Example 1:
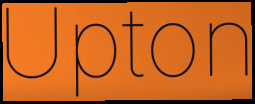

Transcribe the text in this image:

Upton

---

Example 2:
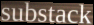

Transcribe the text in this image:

substack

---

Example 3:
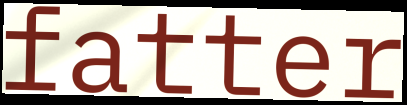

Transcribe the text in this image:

fatter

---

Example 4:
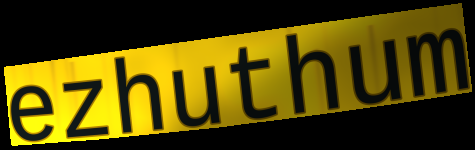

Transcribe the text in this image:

ezhuthum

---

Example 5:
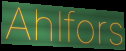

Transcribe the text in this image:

Ahlfors